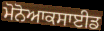
ਮੋਨੋਆਕਸਾਈਡ